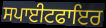
ਸਪਾਈਟਫਾਇਰ